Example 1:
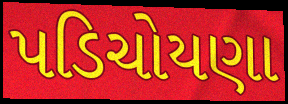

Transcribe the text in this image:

પડિચોયણા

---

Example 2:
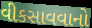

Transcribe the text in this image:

વીકસાવવાનો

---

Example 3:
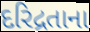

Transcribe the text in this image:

દરિદ્રતાના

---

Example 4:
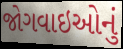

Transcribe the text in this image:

જોગવાઇઓનું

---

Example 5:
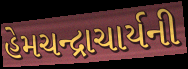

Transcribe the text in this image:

હેમચન્દ્રાચાર્યની